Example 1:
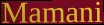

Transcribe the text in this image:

Mamani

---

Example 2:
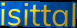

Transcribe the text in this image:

isittal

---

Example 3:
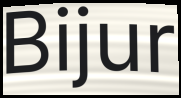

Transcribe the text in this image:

Bijur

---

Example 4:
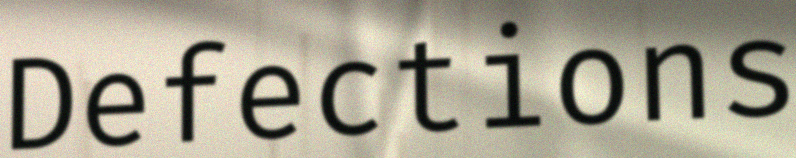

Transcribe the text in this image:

Defections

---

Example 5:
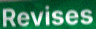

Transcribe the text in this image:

Revises